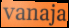
vanaja